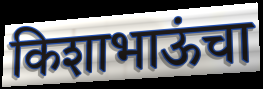
किशाभाऊंचा